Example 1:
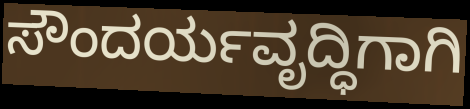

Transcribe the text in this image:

ಸೌಂದರ್ಯವೃದ್ಧಿಗಾಗಿ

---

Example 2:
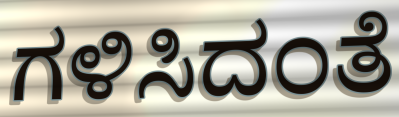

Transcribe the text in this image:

ಗಳಿಸಿದಂತೆ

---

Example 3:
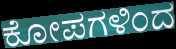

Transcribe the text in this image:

ಕೋಪಗಳಿಂದ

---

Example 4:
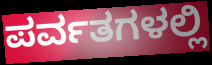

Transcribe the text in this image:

ಪರ್ವತಗಳಲ್ಲಿ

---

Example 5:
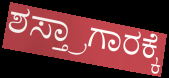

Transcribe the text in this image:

ಶಸ್ತ್ರಾಗಾರಕ್ಕೆ